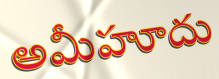
అమీహూదు